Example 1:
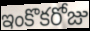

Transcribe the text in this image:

ఇంకొకరోజు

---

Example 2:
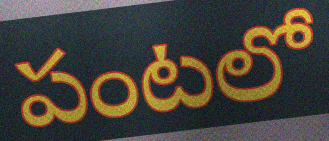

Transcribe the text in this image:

పంటలో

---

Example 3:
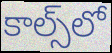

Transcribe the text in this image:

కాల్స్‌లో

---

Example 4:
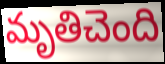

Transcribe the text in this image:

మృతిచెంది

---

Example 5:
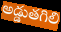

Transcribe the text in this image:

అడ్డుతగిలి